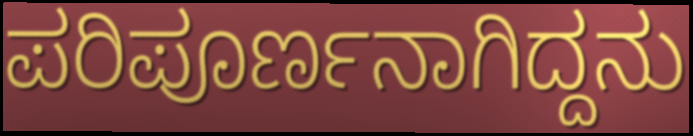
ಪರಿಪೂರ್ಣನಾಗಿದ್ದನು